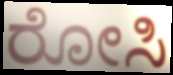
ರೋಸಿ